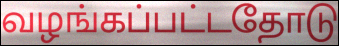
வழங்கப்பட்டதோடு